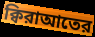
ক্বিরাআতের